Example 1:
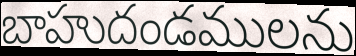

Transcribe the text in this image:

బాహుదండములను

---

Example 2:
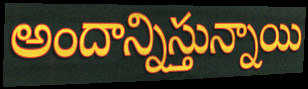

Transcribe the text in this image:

అందాన్నిస్తున్నాయి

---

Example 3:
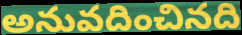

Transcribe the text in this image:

అనువదించినది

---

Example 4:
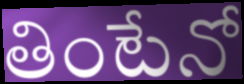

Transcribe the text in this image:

తింటేనో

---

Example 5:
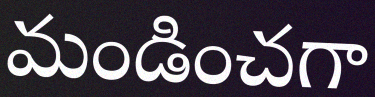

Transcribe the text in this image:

మండించగా